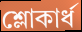
শ্লোকার্ধ